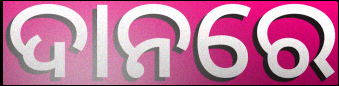
ଦାନରେ